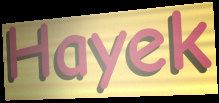
Hayek